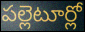
పల్లెటూర్లో